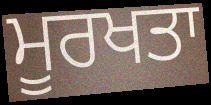
ਮੂਰਖਤਾ